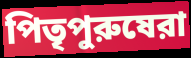
পিতৃপুরুষেরা